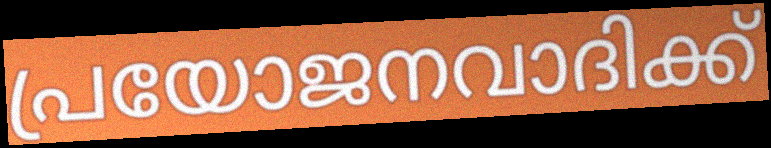
പ്രയോജനവാദിക്ക്